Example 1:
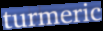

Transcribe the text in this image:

turmeric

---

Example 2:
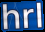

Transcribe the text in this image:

hrl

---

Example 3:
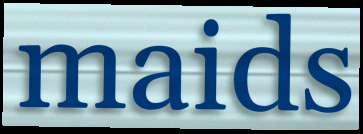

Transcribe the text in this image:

maids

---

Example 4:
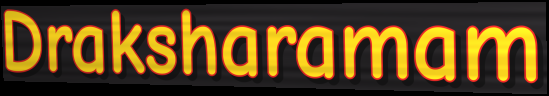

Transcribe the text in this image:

Draksharamam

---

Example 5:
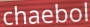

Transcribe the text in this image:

chaebol